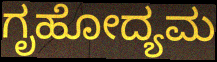
ಗೃಹೋದ್ಯಮ